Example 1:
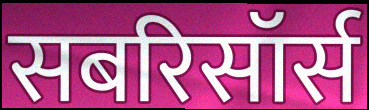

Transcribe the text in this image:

सबरिसॉर्स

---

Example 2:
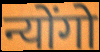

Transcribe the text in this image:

न्योंगो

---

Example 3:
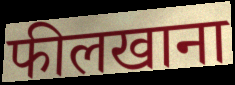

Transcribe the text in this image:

फीलखाना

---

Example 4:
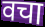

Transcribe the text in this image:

वचा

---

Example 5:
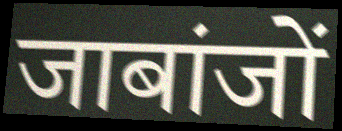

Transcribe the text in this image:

जाबांजों